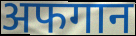
अफगान